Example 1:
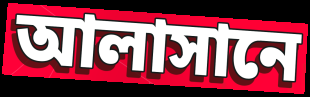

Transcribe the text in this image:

আলাসানে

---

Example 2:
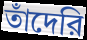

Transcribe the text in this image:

তাঁদেরি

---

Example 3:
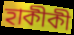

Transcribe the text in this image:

হাকীকী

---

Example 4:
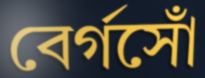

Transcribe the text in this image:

বের্গসোঁ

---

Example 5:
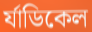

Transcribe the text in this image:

র্যাডিকেল